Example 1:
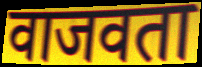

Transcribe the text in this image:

वाजवता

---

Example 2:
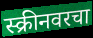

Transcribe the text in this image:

स्क्रीनवरचा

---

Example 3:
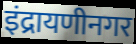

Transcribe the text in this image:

इंद्रायणीनगर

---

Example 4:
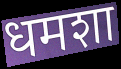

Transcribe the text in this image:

धमशा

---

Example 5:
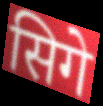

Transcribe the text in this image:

सिगे